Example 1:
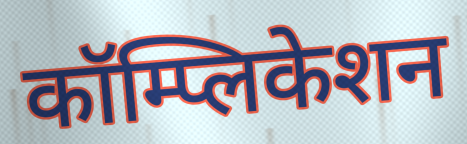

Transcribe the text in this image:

कॉम्प्लिकेशन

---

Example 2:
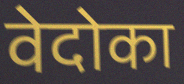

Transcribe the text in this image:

वेदोका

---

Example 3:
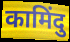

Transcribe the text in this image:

कामिंदु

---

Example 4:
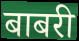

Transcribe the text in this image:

बाबरी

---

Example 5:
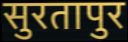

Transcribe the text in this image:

सुरतापुर